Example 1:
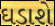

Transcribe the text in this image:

ઘડાશે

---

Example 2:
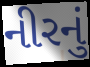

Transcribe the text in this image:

નીરનું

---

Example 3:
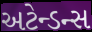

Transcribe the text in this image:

અટેન્ડન્સ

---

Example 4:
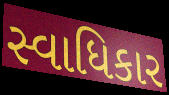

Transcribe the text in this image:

સ્વાધિકાર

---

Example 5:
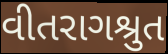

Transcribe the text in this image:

વીતરાગશ્રુત